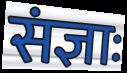
संज्ञाः